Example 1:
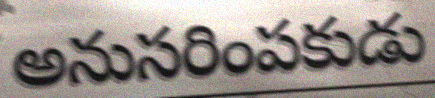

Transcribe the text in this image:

అనుసరింపకుడు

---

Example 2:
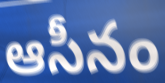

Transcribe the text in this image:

ఆసీనం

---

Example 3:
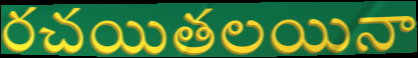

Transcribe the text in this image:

రచయితలయినా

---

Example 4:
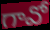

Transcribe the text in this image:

గావో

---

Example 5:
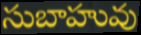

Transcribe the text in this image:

సుబాహువు